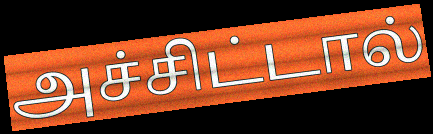
அச்சிட்டால்